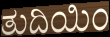
ತುದಿಯಿಂ